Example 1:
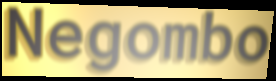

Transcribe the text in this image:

Negombo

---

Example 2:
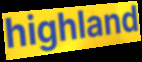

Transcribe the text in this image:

highland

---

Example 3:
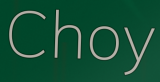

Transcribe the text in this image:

Choy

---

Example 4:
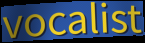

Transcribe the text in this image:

vocalist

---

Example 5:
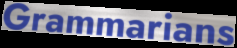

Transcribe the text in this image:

Grammarians